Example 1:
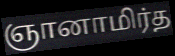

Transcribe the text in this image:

ஞானாமிர்த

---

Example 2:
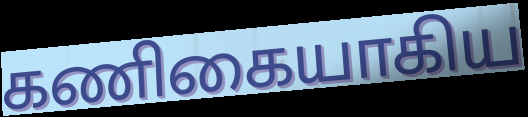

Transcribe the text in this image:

கணிகையாகிய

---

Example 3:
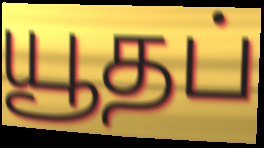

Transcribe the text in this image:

யூதப்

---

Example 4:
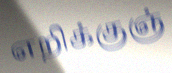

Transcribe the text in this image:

எறிக்குஞ்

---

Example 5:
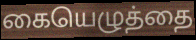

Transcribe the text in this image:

கையெழுத்தை